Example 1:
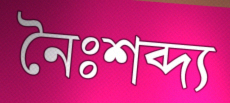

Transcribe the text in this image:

নৈঃশব্দ্য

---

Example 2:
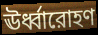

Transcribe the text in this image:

ঊর্ধ্বারোহণ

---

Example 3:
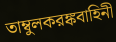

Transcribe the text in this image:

তাম্বুলকরঙ্কবাহিনী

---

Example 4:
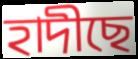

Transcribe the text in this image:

হাদীছে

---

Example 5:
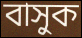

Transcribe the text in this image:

বাসুক